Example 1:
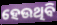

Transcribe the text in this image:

ହେଉଥିବି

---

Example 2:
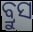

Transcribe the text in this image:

ବ୍ରୁସ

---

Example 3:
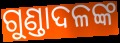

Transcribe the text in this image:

ଗୁଣ୍ଡାଦଳଙ୍କ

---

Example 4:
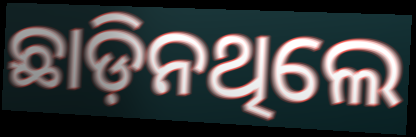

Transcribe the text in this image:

ଛାଡ଼ିନଥିଲେ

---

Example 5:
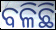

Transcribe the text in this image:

ବଳିଛି